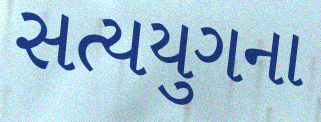
સત્યયુગના